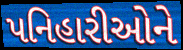
પનિહારીઓને